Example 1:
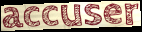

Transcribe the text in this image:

accuser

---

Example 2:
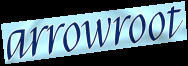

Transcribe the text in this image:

arrowroot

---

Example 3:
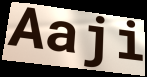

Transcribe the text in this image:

Aaji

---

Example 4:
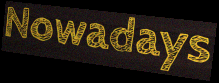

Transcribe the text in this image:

Nowadays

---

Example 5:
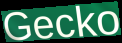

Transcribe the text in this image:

Gecko